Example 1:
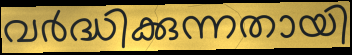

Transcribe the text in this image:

വർദ്ധിക്കുന്നതായി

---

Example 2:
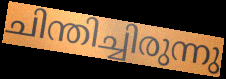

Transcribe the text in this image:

ചിന്തിച്ചിരുന്നു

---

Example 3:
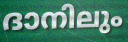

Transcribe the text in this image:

ദാനിലും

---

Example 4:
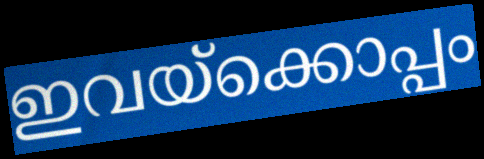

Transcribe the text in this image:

ഇവയ്ക്കൊപ്പം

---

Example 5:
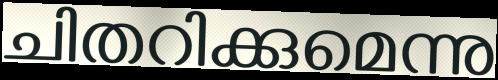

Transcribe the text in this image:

ചിതറിക്കുമെന്നു